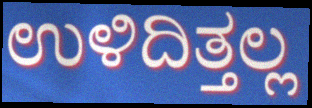
ಉಳಿದಿತ್ತಲ್ಲ